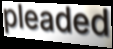
pleaded